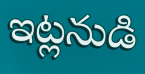
ఇట్లనుడి